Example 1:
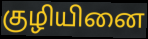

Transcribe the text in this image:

குழியினை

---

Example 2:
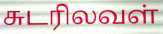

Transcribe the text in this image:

சுடரிலவள்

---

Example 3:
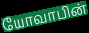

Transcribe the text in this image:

யோவாபின்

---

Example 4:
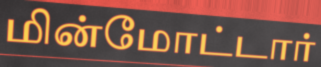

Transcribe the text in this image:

மின்மோட்டார்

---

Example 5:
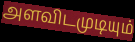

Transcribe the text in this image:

அளவிடமுடியும்